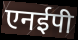
एनईपी